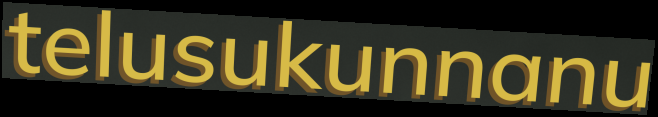
telusukunnanu